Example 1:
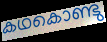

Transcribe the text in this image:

കഥകൊണ്ടു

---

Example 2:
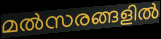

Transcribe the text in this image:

മൽസരങ്ങളിൽ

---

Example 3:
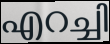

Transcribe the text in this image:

എറച്ചി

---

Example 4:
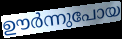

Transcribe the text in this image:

ഊർന്നുപോയ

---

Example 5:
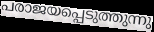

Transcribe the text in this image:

പരാജയപ്പെടുത്തുന്നു